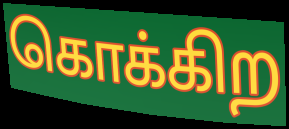
கொக்கிற